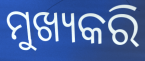
ମୁଖ୍ୟକରି